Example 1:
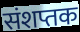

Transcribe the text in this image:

संशप्तक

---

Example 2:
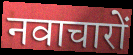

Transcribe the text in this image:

नवाचारों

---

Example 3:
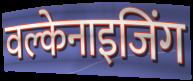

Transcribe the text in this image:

वल्केनाइजिंग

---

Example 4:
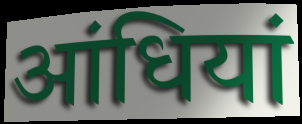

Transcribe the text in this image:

आंधियां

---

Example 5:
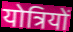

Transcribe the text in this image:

योत्रियों